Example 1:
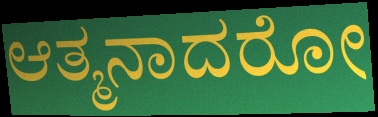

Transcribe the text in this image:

ಆತ್ಮನಾದರೋ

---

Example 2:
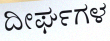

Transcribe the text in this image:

ದೀರ್ಘಗಳ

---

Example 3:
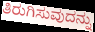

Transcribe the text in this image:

ತಿರುಗಿಸುವುದನ್ನು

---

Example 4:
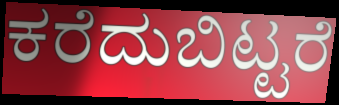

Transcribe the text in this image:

ಕರೆದುಬಿಟ್ಟರೆ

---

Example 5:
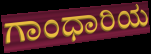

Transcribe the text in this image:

ಗಾಂಧಾರಿಯ